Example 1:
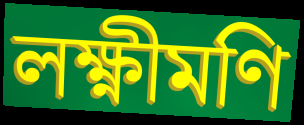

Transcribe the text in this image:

লক্ষ্ণীমণি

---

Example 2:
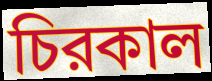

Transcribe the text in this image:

চিরকাল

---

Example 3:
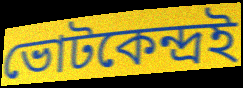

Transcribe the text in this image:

ভোটকেন্দ্রই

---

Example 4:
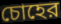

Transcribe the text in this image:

চোহের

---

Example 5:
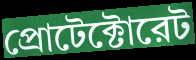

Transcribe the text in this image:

প্রোটেক্টোরেট